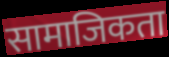
सामाजिकता